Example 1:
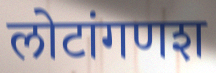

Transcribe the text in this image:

लोटांगणश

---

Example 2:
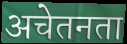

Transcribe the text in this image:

अचेतनता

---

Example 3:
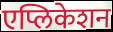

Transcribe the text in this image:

एप्लिकेशन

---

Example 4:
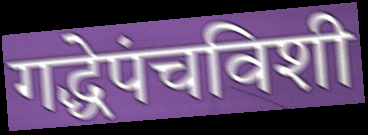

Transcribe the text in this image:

गद्धेपंचविशी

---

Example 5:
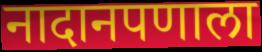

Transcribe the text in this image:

नादानपणाला